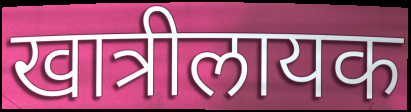
खात्रीलायक